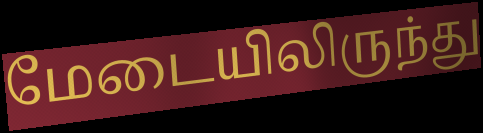
மேடையிலிருந்து